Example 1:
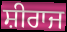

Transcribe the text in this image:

ਸ਼ੀਰਾਜ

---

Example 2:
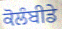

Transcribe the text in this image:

ਕੋਲੰਬੀਡੇ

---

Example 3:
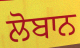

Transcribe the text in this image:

ਲੋਬਾਨ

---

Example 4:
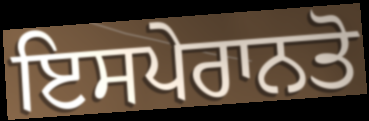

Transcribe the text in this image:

ਇਸਪੇਰਾਨਤੋ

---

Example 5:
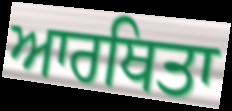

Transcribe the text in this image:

ਆਰਥਿਤਾ